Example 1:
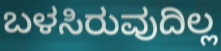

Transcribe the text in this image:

ಬಳಸಿರುವುದಿಲ್ಲ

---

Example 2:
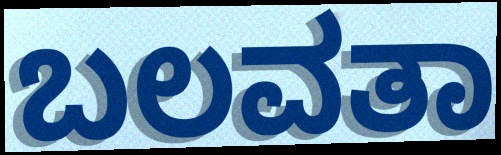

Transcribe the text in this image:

ಬಲವತಾ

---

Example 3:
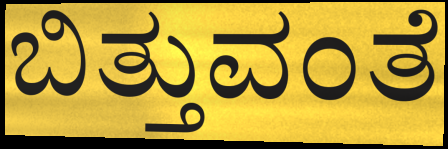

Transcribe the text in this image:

ಬಿತ್ತುವಂತೆ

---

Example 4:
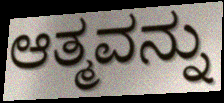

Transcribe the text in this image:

ಆತ್ಮವನ್ನು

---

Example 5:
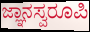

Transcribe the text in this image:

ಜ್ಞಾನಸ್ವರೂಪಿ